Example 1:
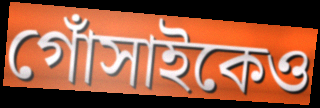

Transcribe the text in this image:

গোঁসাইকেও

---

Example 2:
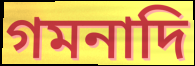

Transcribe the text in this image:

গমনাদি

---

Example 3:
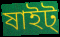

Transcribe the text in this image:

ষাইট্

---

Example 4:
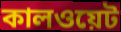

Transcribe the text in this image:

কালওয়েট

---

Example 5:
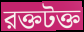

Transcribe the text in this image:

রক্তটক্ত